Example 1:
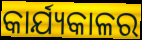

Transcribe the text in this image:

କାର୍ଯ୍ୟକାଳର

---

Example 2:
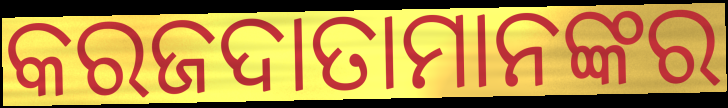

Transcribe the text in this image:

କରଜଦାତାମାନଙ୍କର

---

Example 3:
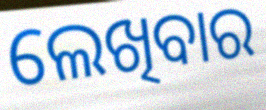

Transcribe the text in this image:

ଲେଖିବାର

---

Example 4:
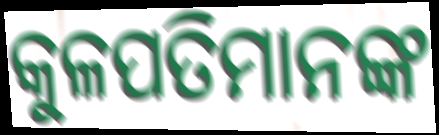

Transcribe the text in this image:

କୁଳପତିମାନଙ୍କ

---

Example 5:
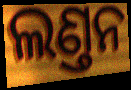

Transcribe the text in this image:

ଲଣ୍ତନ